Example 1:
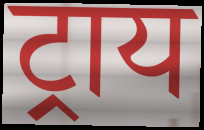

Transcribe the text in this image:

ट्राय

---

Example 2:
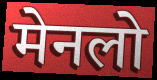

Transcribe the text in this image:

मेनलो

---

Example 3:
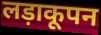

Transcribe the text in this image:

लड़ाकूपन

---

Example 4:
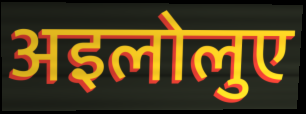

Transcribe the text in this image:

अइलोलुए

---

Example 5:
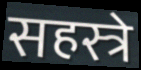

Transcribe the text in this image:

सहस्त्रे